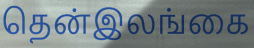
தென்இலங்கை